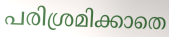
പരിശ്രമിക്കാതെ